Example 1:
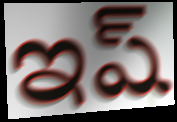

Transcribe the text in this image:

ఇష్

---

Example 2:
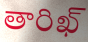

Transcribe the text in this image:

తారిఖ్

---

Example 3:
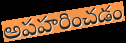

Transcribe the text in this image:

అపహరించడం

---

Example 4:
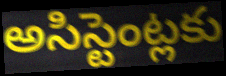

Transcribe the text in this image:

అసిస్టెంట్లకు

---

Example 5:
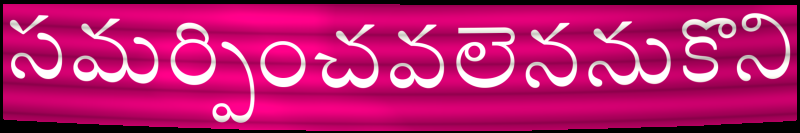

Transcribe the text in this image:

సమర్పించవలెననుకొని